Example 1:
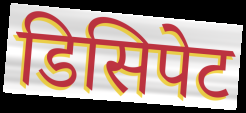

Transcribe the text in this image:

डिसिपेट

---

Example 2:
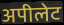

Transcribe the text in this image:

अपीलेट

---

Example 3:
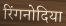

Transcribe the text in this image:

रिंगनोदिया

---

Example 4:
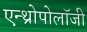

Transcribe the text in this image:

एन्थ्रोपोलॉजी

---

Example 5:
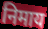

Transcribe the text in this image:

निमाय